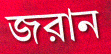
জরান